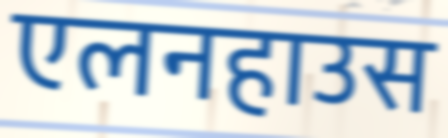
एलनहाउस